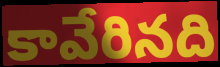
కావేరినది